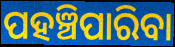
ପହଞ୍ଚିପାରିବା